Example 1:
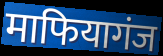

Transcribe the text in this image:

माफियागंज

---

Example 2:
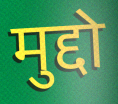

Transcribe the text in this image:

मुद्दो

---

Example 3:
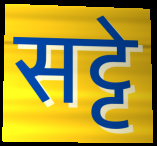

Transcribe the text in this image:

सट्टे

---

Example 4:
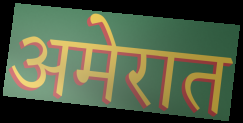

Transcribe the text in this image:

अमेरात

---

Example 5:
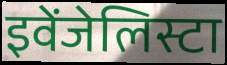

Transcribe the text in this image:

इवेंजेलिस्टा